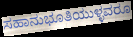
ಸಹಾನುಭೂತಿಯುಳ್ಳವರೂ